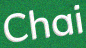
Chai